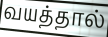
வயத்தால்